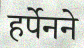
हर्पेनने